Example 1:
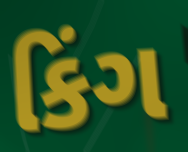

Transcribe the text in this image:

કિંગ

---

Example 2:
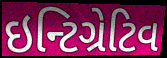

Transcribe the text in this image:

ઇન્ટિગ્રેટિવ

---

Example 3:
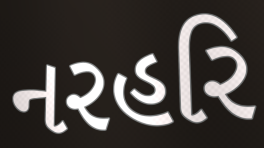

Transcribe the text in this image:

નરહરિ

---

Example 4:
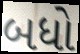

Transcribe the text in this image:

બધો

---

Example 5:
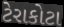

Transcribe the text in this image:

ટેરાકોટા